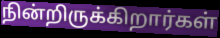
நின்றிருக்கிறார்கள்